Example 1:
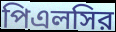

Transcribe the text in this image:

পিএলসির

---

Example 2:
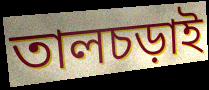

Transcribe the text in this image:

তালচড়াই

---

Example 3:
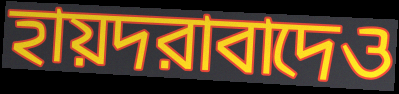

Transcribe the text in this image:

হায়দরাবাদেও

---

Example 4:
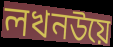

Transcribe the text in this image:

লখনউয়ে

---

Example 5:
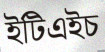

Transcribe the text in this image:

ইটিএইচ